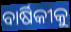
ବାର୍ଷିକୀକୁ